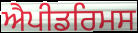
ਐਪੀਡਰਿਮਸ